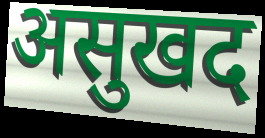
असुखद